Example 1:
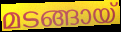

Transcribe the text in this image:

മടങ്ങായ്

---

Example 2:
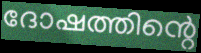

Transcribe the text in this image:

ദോഷത്തിന്റെ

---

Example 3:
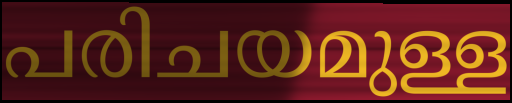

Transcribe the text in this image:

പരിചയമുള്ള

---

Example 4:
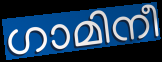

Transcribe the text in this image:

ഗാമിനീ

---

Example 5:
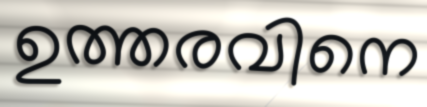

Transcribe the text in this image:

ഉത്തരവിനെ